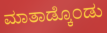
ಮಾತಾಡ್ಕೊಂಡು